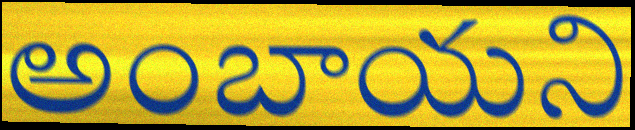
అంబాయని